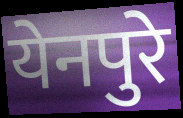
येनपुरे